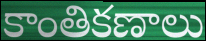
కాంతికణాలు